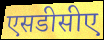
एसडीसीए